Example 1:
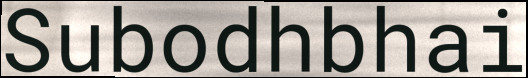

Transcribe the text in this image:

Subodhbhai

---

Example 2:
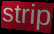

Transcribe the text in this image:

strip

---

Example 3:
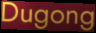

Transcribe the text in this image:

Dugong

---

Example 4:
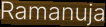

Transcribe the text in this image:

Ramanuja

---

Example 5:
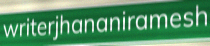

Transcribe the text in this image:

writerjhananiramesh